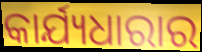
କାର୍ଯ୍ୟଧାରାର